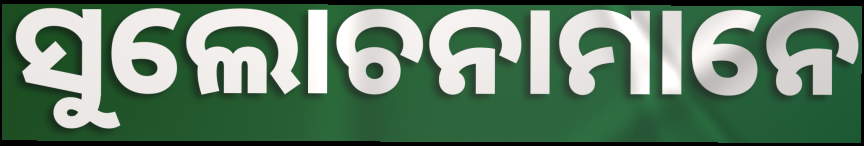
ସୁଲୋଚନାମାନେ